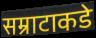
सम्राटाकडे